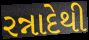
રન્નાદેથી